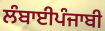
ਲੰਬਾਈਪੰਜਾਬੀ